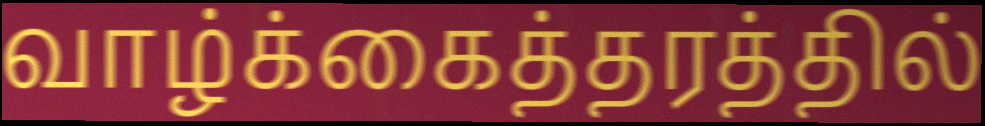
வாழ்க்கைத்தரத்தில்